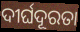
ଦୀର୍ଘଦୂରତା